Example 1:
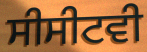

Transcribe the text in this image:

ਸੀਸੀਟਵੀ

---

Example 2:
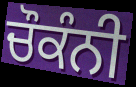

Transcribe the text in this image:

ਚੌਕੰਨੀ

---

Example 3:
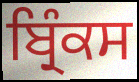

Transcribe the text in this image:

ਬ੍ਰਿੰਕਸ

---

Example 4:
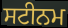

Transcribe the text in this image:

ਸਟੀਨਮ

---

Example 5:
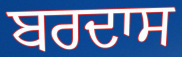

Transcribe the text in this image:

ਬਰਦਾਸ